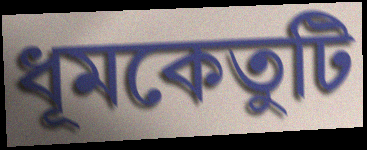
ধূমকেতুটি